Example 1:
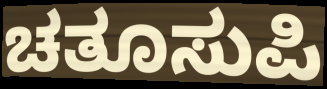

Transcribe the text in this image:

ಚತೂಸುಪಿ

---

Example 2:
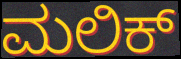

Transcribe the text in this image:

ಮಲಿಕ್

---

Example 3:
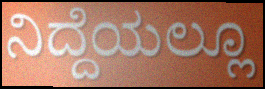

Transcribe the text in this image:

ನಿದ್ದೆಯಲ್ಲೂ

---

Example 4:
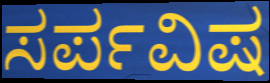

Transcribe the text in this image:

ಸರ್ಪವಿಷ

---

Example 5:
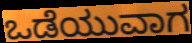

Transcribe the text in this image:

ಒಡೆಯುವಾಗ